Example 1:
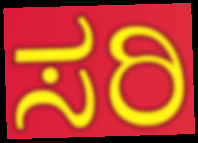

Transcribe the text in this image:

ಸರಿ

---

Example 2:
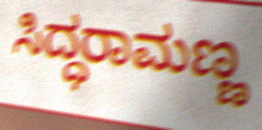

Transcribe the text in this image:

ಸಿದ್ಧರಾಮಣ್ಣ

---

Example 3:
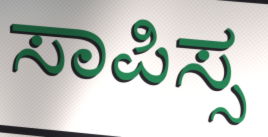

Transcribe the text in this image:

ಸಾಪಿಸ್ಸ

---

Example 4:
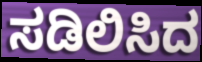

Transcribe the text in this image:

ಸಡಿಲಿಸಿದ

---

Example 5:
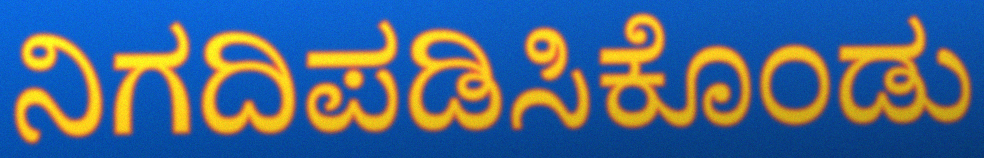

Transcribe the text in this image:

ನಿಗದಿಪಡಿಸಿಕೊಂಡು